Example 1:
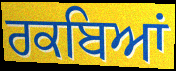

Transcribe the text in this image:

ਰਕਬਿਆਂ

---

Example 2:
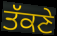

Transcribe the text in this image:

ਤੱਕਣੇ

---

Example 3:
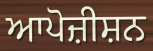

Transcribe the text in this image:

ਆਪੋਜ਼ੀਸ਼ਨ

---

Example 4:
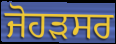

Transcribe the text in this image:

ਜੋਹੜਸਰ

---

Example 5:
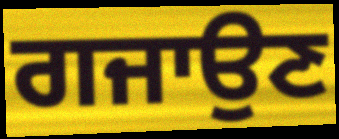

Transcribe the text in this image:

ਗਜਾਉਣ